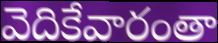
వెదికేవారంతా